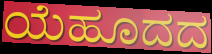
ಯೆಹೂದದ